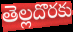
తెల్లదొరకు